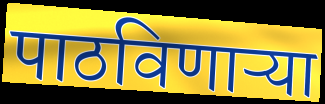
पाठविणाऱ्या